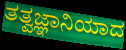
ತತ್ವಜ್ಞಾನಿಯಾದ